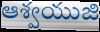
ఆశ్వయుజి